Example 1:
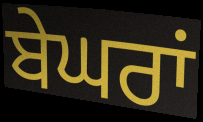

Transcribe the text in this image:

ਬੇਘਰਾਂ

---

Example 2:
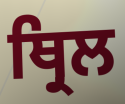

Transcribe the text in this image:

ਥ੍ਰਿਲ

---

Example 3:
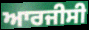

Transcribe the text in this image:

ਆਰਜੀਸੀ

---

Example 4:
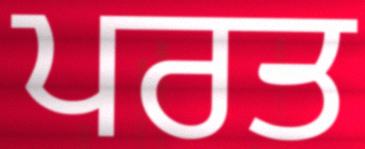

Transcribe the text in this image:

ਪਰਤ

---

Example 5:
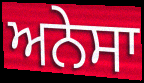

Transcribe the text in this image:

ਅਨੇਸਾ